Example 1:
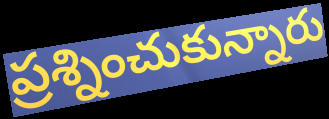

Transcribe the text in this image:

ప్రశ్నించుకున్నారు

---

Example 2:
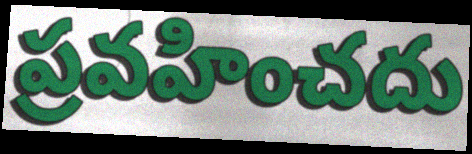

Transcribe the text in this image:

ప్రవహించదు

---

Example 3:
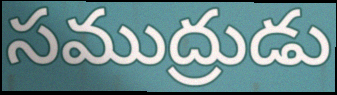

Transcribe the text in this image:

సముద్రుడు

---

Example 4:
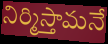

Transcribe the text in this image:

నిర్మిస్తామనే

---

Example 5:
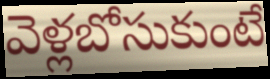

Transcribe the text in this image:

వెళ్లబోసుకుంటే